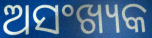
ଅସଂଖ୍ୟକ